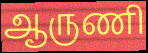
ஆருணி